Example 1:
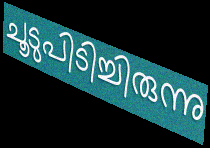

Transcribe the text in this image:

ചൂടുപിടിച്ചിരുന്നു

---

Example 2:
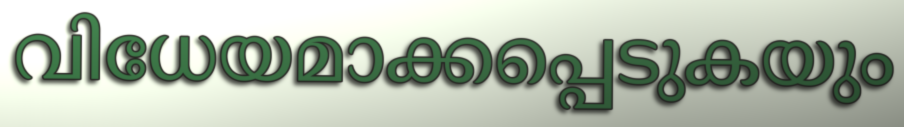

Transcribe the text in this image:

വിധേയമാക്കപ്പെടുകയും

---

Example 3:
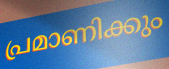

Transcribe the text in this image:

പ്രമാണിക്കും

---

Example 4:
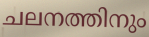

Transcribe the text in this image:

ചലനത്തിനും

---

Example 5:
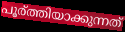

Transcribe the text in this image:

പൂര്ത്തിയാക്കുന്നത്